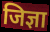
जिज्ञा